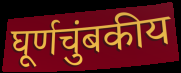
घूर्णचुंबकीय